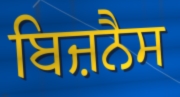
ਬਿਜ਼ਨੈਸ